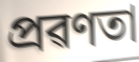
প্ৰৱণতা